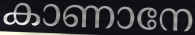
കാണാനേ